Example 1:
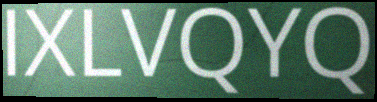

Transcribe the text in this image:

IXLVQYQ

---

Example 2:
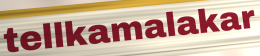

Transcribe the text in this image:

tellkamalakar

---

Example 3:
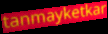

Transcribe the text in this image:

tanmayketkar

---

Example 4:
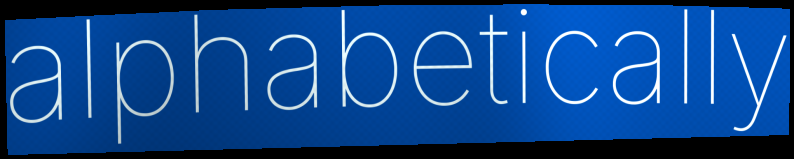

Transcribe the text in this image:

alphabetically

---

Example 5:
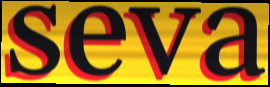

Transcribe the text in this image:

seva